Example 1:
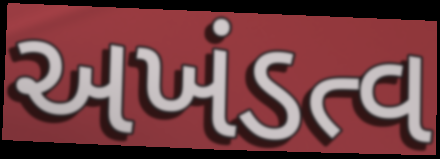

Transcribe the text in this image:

અખંડત્વ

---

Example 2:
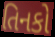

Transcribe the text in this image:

તિનકો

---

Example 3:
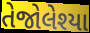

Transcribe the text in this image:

તેજોલેશ્યા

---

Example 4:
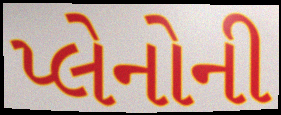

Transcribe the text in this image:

પ્લેનોની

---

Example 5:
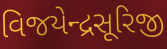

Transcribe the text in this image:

વિજયેન્દ્રસૂરિજી